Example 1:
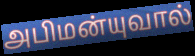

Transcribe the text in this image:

அபிமன்யுவால்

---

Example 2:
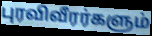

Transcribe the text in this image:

புரவிவீரர்களும்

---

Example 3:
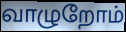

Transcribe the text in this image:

வாழுறோம்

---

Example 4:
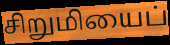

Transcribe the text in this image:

சிறுமியைப்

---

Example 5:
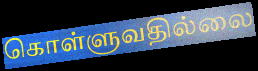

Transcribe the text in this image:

கொள்ளுவதில்லை